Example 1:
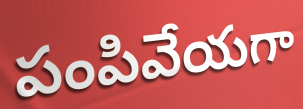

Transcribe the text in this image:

పంపివేయగా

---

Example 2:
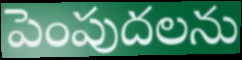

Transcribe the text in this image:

పెంపుదలను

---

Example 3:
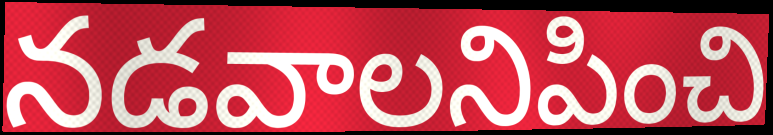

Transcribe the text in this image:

నడవాలనిపించి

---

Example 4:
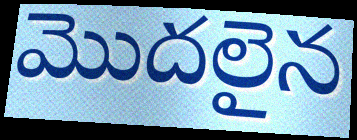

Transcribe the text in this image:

మొదలైన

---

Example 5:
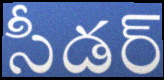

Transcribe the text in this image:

సీడర్